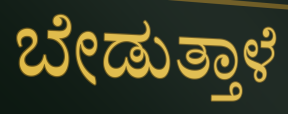
ಬೇಡುತ್ತಾಳೆ